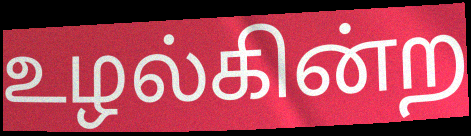
உழல்கின்ற